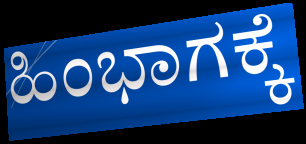
ಹಿಂಭಾಗಕ್ಕೆ